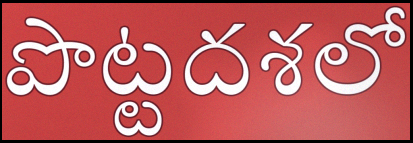
పొట్టదశలో